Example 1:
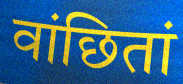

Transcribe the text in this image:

वांछितां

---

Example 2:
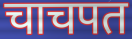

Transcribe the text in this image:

चाचपत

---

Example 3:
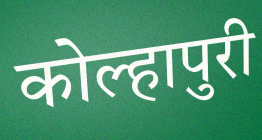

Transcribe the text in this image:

कोल्हापुरी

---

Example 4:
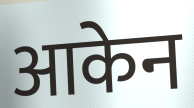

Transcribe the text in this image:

आकेन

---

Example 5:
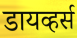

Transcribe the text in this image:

डायव्हर्स